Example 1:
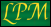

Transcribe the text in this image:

LPM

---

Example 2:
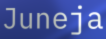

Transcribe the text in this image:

Juneja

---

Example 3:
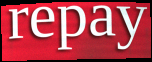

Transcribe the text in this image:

repay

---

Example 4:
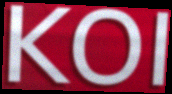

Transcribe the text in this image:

KOI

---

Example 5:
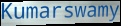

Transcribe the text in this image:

Kumarswamy